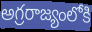
అగ్రరాజ్యంలోకి